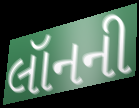
લૉનની